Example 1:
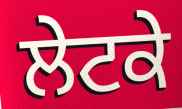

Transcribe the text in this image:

ਲੇਟਕੇ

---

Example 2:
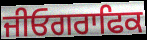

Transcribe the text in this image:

ਜੀਓਗਰਾਫਿਕ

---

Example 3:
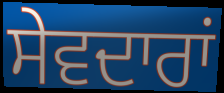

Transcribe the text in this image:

ਸੇਵਦਾਰਾਂ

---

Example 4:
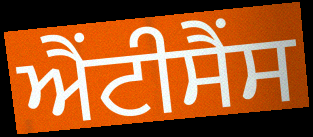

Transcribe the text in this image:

ਐਂਟੀਸੈਂਸ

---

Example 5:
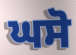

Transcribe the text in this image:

ਘਸੋ